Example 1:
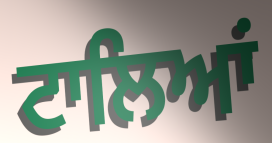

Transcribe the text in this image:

ਟਾਲਿਆਂ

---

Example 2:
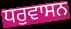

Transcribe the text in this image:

ਧਰੁਵਾਸਨ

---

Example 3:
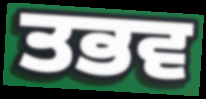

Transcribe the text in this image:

ਤਭਵ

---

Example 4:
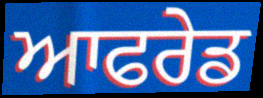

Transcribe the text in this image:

ਆਫਰੇਡ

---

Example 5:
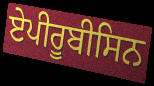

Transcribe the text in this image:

ਏਪੀਰੂਬੀਸਿਨ